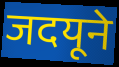
जदयूने